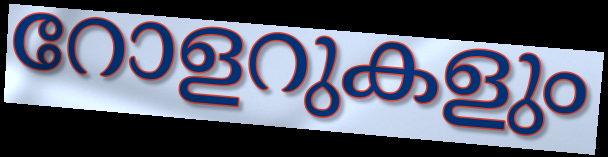
റോളറുകളും